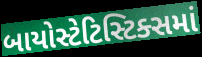
બાયોસ્ટેટિસ્ટિક્સમાં